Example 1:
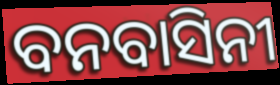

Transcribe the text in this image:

ବନବାସିନୀ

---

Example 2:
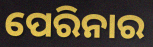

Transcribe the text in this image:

ପେରିନାର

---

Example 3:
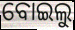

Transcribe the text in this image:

ବୋଇଲୁ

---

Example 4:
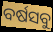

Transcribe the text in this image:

ବର୍ଷସବୁ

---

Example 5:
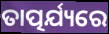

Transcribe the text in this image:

ତାତ୍ପର୍ଯ୍ୟରେ